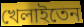
খেলাইতেন